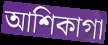
আশিকাগা